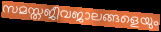
സമസ്തജീവജാലങ്ങളെയും